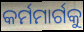
କର୍ମମାର୍ଗକୁ